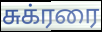
சுக்ரரை